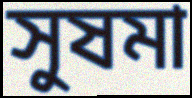
সুষমা